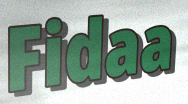
Fidaa